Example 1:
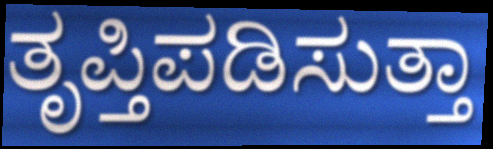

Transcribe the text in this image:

ತೃಪ್ತಿಪಡಿಸುತ್ತಾ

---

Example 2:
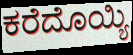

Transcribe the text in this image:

ಕರೆದೊಯ್ಯಿ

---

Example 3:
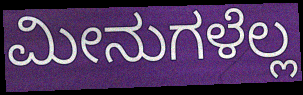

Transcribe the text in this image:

ಮೀನುಗಳೆಲ್ಲ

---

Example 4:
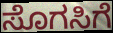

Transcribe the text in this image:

ಸೊಗಸಿಗೆ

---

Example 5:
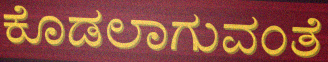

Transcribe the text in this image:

ಕೊಡಲಾಗುವಂತೆ